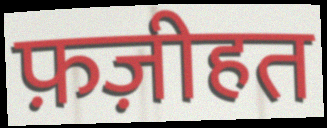
फ़ज़ीहत